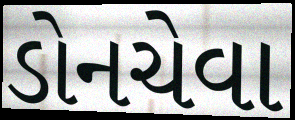
ડોનચેવા